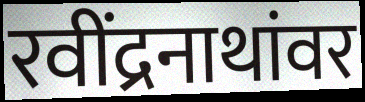
रवींद्रनाथांवर